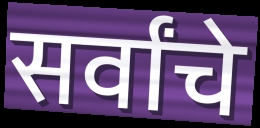
सर्वांचे